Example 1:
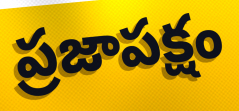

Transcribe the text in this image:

ప్రజాపక్షం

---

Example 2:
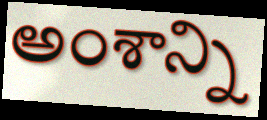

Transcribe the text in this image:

అంశాన్ని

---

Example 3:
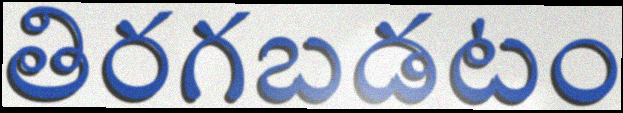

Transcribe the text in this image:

తిరగబడటం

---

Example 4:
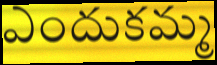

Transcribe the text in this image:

ఎందుకమ్మ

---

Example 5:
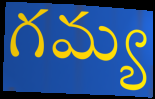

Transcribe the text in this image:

గమ్య